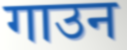
गाउन